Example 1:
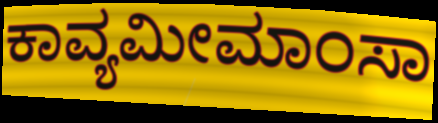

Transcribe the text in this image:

ಕಾವ್ಯಮೀಮಾಂಸಾ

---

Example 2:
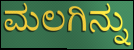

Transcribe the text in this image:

ಮಲಗಿನ್ನು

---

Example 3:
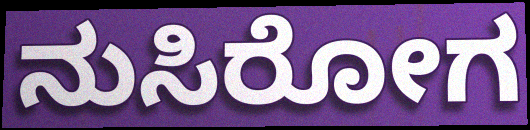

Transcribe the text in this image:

ನುಸಿರೋಗ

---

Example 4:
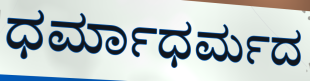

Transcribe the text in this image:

ಧರ್ಮಾಧರ್ಮದ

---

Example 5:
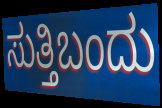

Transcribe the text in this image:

ಸುತ್ತಿಬಂದು